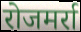
रोजमर्रा